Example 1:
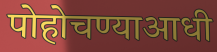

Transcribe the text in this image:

पोहोचण्याआधी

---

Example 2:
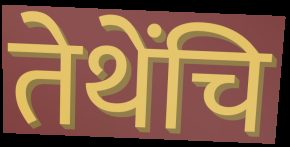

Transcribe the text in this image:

तेथेंचि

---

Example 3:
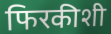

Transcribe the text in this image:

फिरकीशी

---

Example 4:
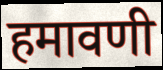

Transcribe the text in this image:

हमावणी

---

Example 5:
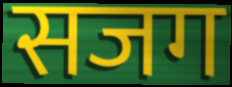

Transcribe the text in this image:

सजग